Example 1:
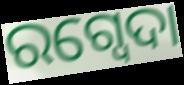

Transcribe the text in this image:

ରଗ୍ବେଦା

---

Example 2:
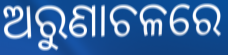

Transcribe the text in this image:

ଅରୁଣାଚଳରେ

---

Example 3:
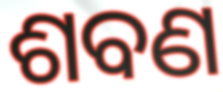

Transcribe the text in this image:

ଶବଣ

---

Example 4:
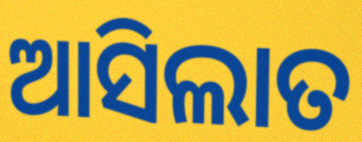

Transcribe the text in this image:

ଆସିଲାତ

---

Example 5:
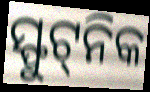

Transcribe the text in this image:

ସ୍ଫୁଟ୍‌ନିକ